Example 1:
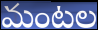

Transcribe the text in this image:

మంటల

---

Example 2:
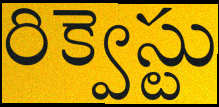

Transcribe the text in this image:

రిక్వెస్టు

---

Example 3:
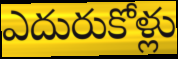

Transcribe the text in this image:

ఎదురుకోళ్లు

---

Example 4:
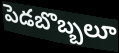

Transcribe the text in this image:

పెడబొబ్బలూ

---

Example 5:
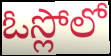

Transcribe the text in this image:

ఓస్లోలో